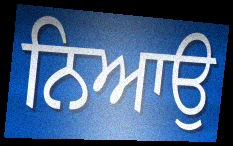
ਨਿਆਉ